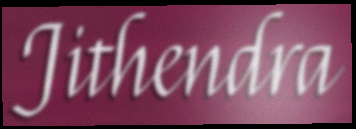
Jithendra